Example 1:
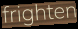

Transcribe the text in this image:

frighten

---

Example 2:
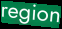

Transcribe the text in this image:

region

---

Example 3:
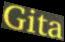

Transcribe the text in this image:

Gita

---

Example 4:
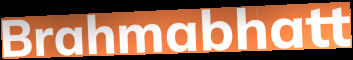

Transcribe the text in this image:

Brahmabhatt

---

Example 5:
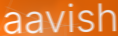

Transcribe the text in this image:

aavish